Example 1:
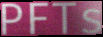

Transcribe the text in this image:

PFTs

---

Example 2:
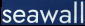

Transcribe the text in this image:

seawall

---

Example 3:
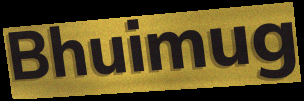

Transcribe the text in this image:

Bhuimug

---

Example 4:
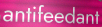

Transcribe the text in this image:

antifeedant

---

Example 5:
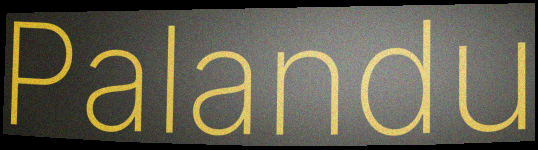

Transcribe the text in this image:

Palandu